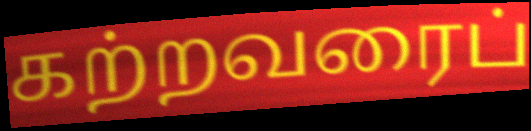
கற்றவரைப்